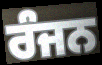
ਰੰਜਨ